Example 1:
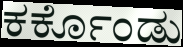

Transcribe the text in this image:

ಕರ್ಕೊಂಡು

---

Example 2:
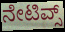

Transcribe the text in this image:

ನೇಟಿವ್ಸ್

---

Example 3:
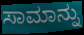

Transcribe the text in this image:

ಸಾಮಾನ್ನು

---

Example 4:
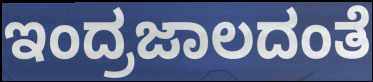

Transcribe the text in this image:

ಇಂದ್ರಜಾಲದಂತೆ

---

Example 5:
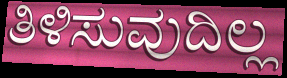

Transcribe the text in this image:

ತಿಳಿಸುವುದಿಲ್ಲ